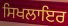
ਸਿਖਲਾਇਰ